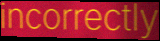
incorrectly